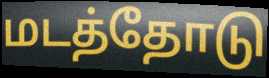
மடத்தோடு